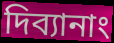
দিব্যানাং